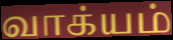
வாக்யம்